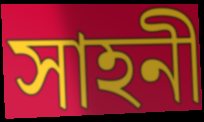
সাহনী